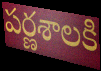
పర్ణశాలకి